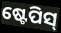
ଷ୍ଟେପିସ୍